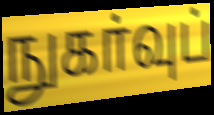
நுகர்வுப்